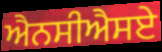
ਐਨਸੀਐਸਏ